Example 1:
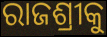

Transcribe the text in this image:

ରାଜଶ୍ରୀକୁ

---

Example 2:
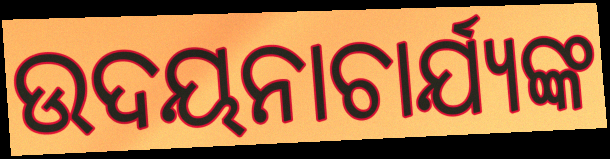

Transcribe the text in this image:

ଉଦୟନାଚାର୍ଯ୍ୟଙ୍କ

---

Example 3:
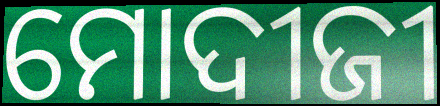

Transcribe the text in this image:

ମୋଦୀଜୀ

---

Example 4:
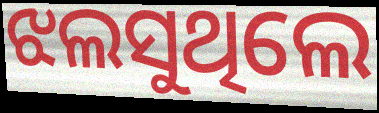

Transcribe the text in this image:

ଝଲସୁଥିଲେ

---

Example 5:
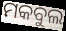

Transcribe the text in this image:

ମକବୁଲ